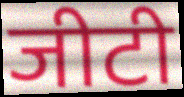
जीटी